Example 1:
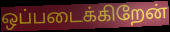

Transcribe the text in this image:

ஒப்படைக்கிறேன்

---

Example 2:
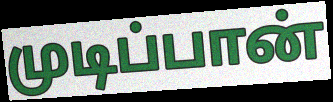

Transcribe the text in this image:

முடிப்பான்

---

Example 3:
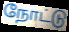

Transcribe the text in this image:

நோட்டு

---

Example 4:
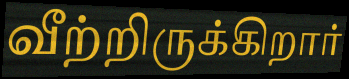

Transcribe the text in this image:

வீற்றிருக்கிறார்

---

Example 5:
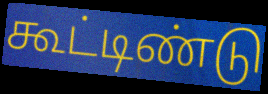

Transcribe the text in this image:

கூட்டிண்டு